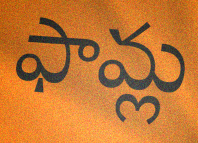
ఫామ్ల